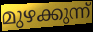
മുഴക്കുന്ന്